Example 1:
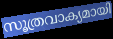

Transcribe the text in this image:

സൂത്രവാക്യമായി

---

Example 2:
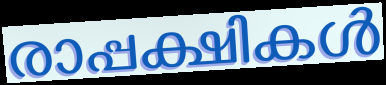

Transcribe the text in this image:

രാപ്പക്ഷികൾ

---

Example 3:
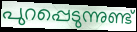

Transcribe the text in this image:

പുറപ്പെടുന്നുണ്ട്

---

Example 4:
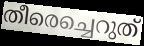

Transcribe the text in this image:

തീരെച്ചെറുത്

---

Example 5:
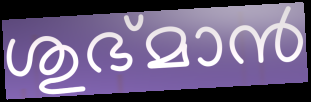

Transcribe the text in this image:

ശുഭ്മാൻ